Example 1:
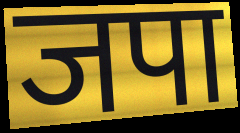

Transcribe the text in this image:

जपा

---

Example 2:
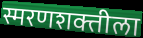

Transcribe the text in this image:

स्मरणशक्तीला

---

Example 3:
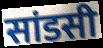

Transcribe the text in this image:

सांडसी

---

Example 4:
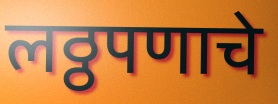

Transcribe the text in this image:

लठ्ठपणाचे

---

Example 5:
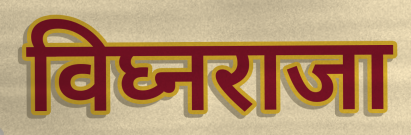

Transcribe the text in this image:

विघ्नराजा